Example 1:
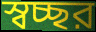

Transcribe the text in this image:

স্বচ্ছর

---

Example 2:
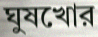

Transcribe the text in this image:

ঘুষখোর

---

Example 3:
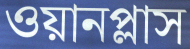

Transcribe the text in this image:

ওয়ানপ্লাস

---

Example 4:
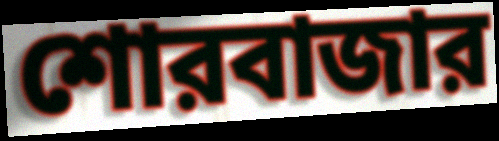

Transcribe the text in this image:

শোরবাজার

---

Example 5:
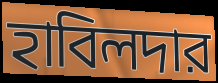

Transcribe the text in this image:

হাবিলদার